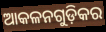
ଆକଳନଗୁଡ଼ିକର